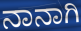
ನಾನಾಗಿ